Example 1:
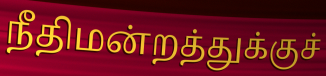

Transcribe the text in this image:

நீதிமன்றத்துக்குச்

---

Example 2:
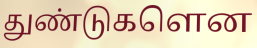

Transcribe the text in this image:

துண்டுகளென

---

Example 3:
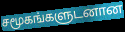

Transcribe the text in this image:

சமூகங்களுடனான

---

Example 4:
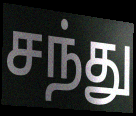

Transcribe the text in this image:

சந்து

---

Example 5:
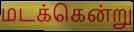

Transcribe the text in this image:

மடக்கென்று